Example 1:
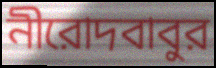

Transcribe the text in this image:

নীরোদবাবুর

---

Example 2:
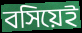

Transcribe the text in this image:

বসিয়েই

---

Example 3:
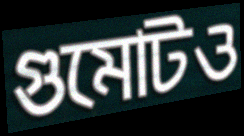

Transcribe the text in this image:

গুমোটও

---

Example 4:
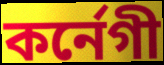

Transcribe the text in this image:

কর্নেগী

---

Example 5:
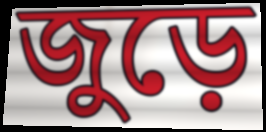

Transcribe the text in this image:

জুড়ে